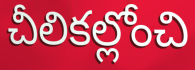
చీలికల్లోంచి